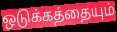
ஒடுக்கத்தையும்